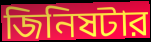
জিনিষটার